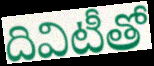
దివిటీతో